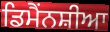
ਡਿਮੈਂਨਸ਼ੀਆ